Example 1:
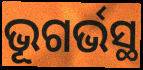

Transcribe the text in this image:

ଭୂଗର୍ଭସ୍ଥ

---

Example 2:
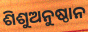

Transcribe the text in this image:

ଶିଶୁଅନୁଷ୍ଠାନ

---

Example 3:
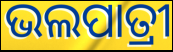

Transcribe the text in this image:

ଭଲପାତ୍ରୀ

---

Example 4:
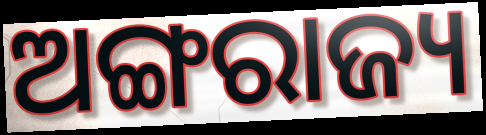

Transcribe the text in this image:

ଅଙ୍ଗରାଜ୍ୟ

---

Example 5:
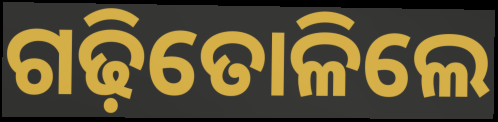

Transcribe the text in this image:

ଗଢ଼ିତୋଳିଲେ